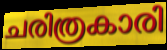
ചരിത്രകാരി